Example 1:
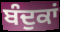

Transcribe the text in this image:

ਬੰਦੁਕਾਂ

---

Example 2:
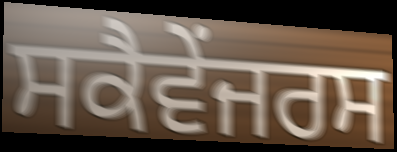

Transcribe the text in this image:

ਸਕੈਵੇਂਜਰਸ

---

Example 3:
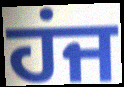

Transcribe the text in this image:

ਹਂਜ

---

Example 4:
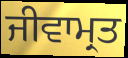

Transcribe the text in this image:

ਜੀਵਾਮ੍ਰਤ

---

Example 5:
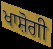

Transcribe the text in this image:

ਖਾਸ਼ੋਗੀ